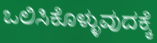
ಒಲಿಸಿಕೊಳ್ಳುವುದಕ್ಕೆ